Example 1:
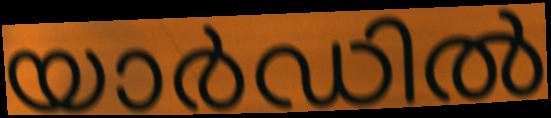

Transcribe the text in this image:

യാർഡിൽ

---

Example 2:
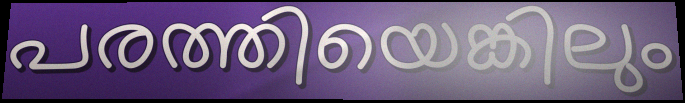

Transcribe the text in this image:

പരത്തിയെങ്കിലും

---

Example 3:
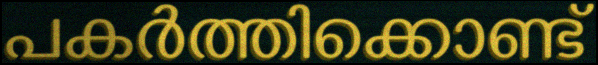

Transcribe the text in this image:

പകർത്തിക്കൊണ്ട്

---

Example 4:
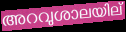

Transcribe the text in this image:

അറവുശാലയില്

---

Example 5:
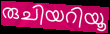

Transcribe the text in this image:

രുചിയറിയൂ